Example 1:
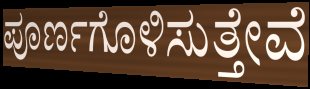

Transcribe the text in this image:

ಪೂರ್ಣಗೊಳಿಸುತ್ತೇವೆ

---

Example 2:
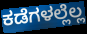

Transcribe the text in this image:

ಕಡೆಗಳಲ್ಲೆಲ್ಲ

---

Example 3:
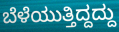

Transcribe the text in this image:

ಬೆಳೆಯುತ್ತಿದ್ದದ್ದು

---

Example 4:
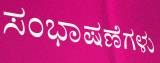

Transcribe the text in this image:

ಸಂಭಾಷಣೆಗಳು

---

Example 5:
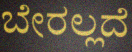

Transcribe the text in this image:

ಬೇರಲ್ಲದೆ